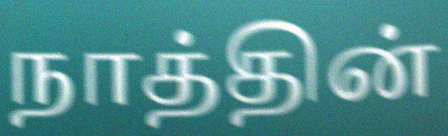
நாத்தின்